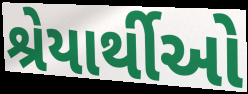
શ્રેયાર્થીઓ